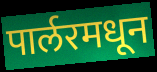
पार्लरमधून